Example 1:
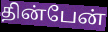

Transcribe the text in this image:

தின்பேன்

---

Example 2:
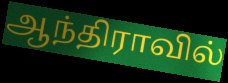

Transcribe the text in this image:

ஆந்திராவில்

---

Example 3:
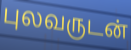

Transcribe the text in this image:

புலவருடன்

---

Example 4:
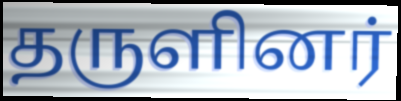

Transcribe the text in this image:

தருளினர்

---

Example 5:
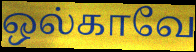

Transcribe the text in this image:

ஒல்காவே